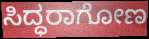
ಸಿದ್ಧರಾಗೋಣ